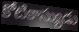
కోటికాస్యుడు